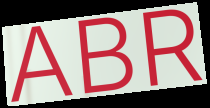
ABR